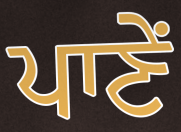
ਪਾਣੇਂ